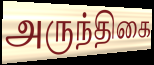
அருந்திகை